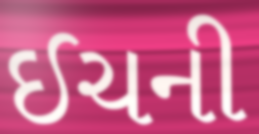
ઈચની